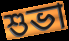
শুভা